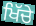
ਖਿੱਚੇ